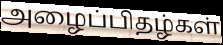
அழைப்பிதழ்கள்